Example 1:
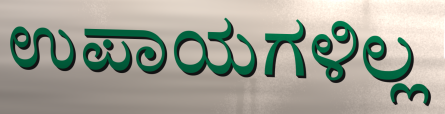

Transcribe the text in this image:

ಉಪಾಯಗಳಿಲ್ಲ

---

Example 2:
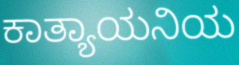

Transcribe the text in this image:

ಕಾತ್ಯಾಯನಿಯ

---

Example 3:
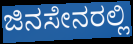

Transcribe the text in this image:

ಜಿನಸೇನರಲ್ಲಿ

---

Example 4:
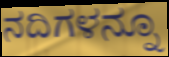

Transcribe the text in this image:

ನದಿಗಳನ್ನೂ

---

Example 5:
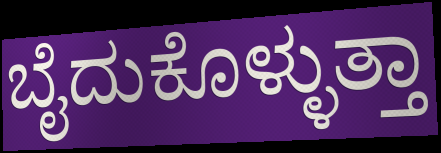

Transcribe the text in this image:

ಬೈದುಕೊಳ್ಳುತ್ತಾ